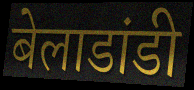
बेलाडांडी